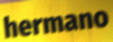
hermano